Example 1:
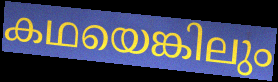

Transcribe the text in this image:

കഥയെങ്കിലും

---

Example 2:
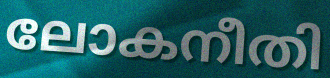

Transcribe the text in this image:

ലോകനീതി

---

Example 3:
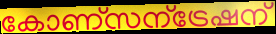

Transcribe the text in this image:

കോണ്സന്ട്രേഷന്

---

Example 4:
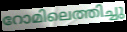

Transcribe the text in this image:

റോമിലെത്തിച്ചു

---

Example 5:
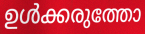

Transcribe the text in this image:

ഉൾക്കരുത്തോ